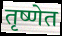
तृष्णेत